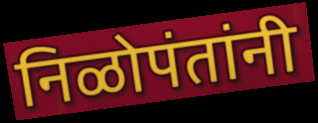
निळोपंतांनी